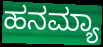
ಹನಮ್ಯಾ